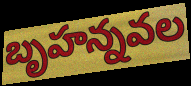
బృహన్నవల